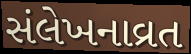
સંલેખનાવ્રત